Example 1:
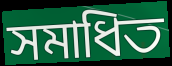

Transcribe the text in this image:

সমাধিত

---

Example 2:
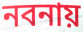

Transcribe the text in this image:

নবনায়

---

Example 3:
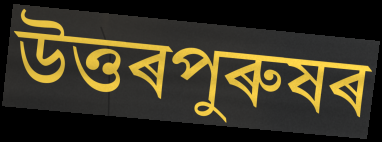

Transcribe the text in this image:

উত্তৰপুৰুষৰ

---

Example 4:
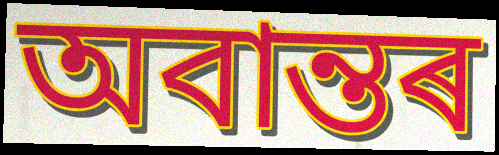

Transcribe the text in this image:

অবান্তৰ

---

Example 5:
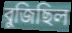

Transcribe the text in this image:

বুজিছিল